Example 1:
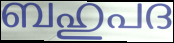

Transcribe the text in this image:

ബഹുപദ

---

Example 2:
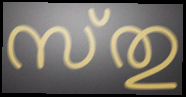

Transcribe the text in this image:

സ്‌തു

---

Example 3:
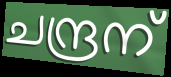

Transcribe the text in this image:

ചന്ദ്രന്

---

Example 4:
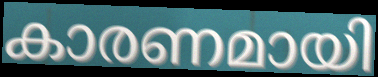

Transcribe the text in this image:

കാരണമായി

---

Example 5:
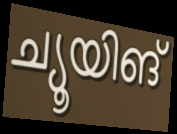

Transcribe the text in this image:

ച്യൂയിങ്